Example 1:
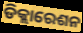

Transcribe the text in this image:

ଡିକ୍ଲାରେଶନ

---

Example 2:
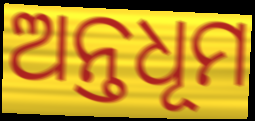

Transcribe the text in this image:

ଅନ୍ତଧୂମ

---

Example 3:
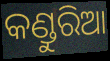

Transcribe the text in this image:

କଣ୍ଡୁରିଆ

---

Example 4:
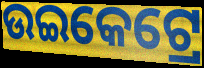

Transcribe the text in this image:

ଉଇକେଟ୍ରେ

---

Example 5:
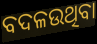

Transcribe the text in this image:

ବଦଳଉଥିବା